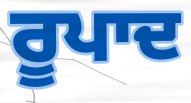
ਰੂਪਾਦ